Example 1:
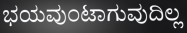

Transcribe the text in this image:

ಭಯವುಂಟಾಗುವುದಿಲ್ಲ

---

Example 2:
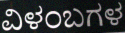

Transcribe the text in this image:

ವಿಳಂಬಗಳ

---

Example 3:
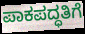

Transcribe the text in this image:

ಪಾಕಪದ್ಧತಿಗೆ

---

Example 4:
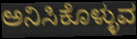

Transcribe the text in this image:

ಅನಿಸಿಕೊಳ್ಳುವ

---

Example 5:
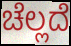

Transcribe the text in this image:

ಚೆಲ್ಲದೆ